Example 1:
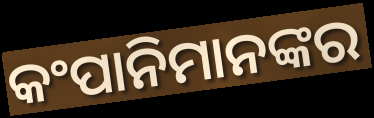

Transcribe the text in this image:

କଂପାନିମାନଙ୍କର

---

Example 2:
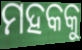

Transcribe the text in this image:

ମହକକୁ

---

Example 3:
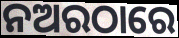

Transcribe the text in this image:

ନଅରଠାରେ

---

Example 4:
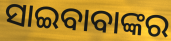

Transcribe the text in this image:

ସାଇବାବାଙ୍କର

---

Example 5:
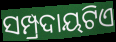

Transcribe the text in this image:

ସମ୍ପ୍ରଦାୟଟିଏ